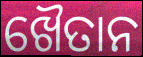
ଖୈତାନ